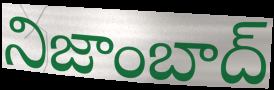
నిజాంబాద్